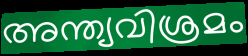
അന്ത്യവിശ്രമം